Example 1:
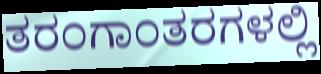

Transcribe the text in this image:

ತರಂಗಾಂತರಗಳಲ್ಲಿ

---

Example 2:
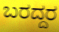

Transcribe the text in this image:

ಬರದ್ದರ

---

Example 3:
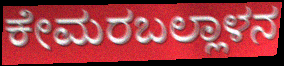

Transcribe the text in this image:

ಕೇಮರಬಲ್ಲಾಳನ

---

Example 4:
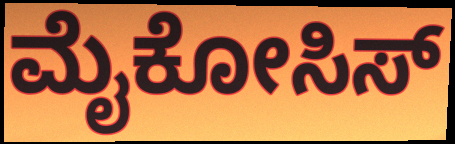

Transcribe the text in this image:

ಮೈಕೋಸಿಸ್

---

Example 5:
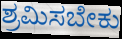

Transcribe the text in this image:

ಶ್ರಮಿಸಬೇಕು